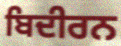
ਬਿਦੀਰਨ